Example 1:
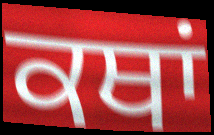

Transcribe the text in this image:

ਕਥਾਂ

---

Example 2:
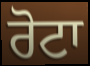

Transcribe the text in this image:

ਰੋਟਾ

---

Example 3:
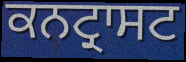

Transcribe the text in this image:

ਕਨਟ੍ਰਾਸਟ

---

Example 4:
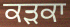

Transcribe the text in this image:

ਕੜਕਾ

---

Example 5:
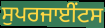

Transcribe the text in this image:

ਸੁਪਰਜਾਈਂਟਸ